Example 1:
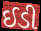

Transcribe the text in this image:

ઈડી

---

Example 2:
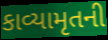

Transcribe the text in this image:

કાવ્યામૃતની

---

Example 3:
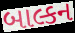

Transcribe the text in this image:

બાલ્કન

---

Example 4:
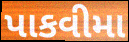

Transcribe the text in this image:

પાકવીમા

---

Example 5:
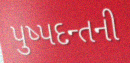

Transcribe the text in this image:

પુષ્પદન્તની